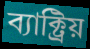
ব্যাক্ট্রিয়